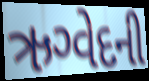
ઋગ્વેદની